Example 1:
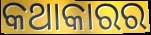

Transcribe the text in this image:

କଥାକାରର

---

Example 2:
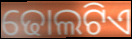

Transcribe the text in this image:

ଢୋଲଟିଏ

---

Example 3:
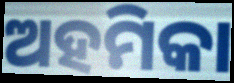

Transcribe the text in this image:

ଅହମିକା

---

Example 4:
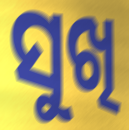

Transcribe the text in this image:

ସୁଖି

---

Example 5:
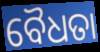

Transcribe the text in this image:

ବୈଧତା